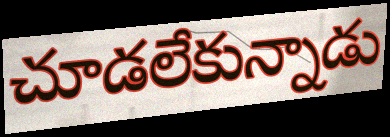
చూడలేకున్నాడు